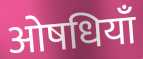
ओषधियाँ